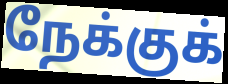
நேக்குக்